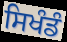
ਸਿਖੰਡੰ